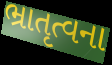
ભ્રાતૃત્વના